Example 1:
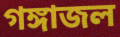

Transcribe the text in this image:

গঙ্গাজল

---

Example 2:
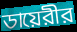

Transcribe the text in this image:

ডায়েরীর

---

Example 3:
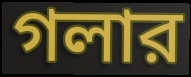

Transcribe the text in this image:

গলার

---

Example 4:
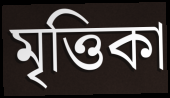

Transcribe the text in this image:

মৃত্তিকা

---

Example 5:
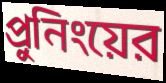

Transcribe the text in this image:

প্রুনিংয়ের